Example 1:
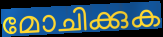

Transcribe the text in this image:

മോചിക്കുക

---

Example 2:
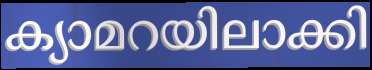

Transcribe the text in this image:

ക്യാമറയിലാക്കി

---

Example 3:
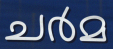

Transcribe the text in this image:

ചർമ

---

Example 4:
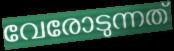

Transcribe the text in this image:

വേരോടുന്നത്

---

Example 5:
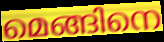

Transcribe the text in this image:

മെങ്ങിനെ